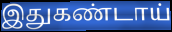
இதுகண்டாய்